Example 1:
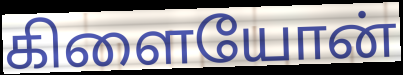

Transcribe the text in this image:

கிளையோன்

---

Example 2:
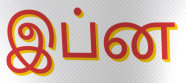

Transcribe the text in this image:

இப்ன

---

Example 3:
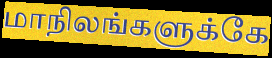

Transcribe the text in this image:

மாநிலங்களுக்கே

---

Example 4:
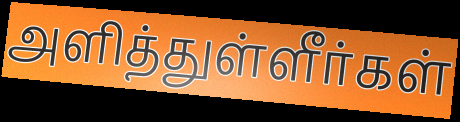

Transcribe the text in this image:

அளித்துள்ளீர்கள்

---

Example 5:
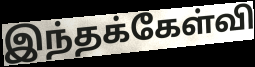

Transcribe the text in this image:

இந்தக்கேள்வி